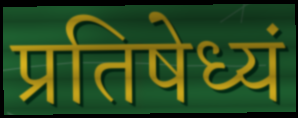
प्रतिषेध्यं